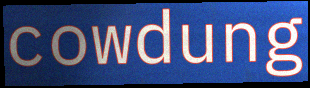
cowdung